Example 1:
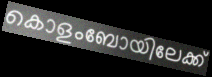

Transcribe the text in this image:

കൊളംബോയിലേക്ക്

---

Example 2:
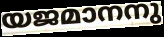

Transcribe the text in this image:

യജമാനനു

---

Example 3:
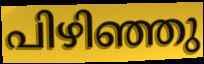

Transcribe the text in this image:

പിഴിഞ്ഞു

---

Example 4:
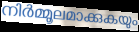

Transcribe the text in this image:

നിർമ്മൂലമാക്കുകയും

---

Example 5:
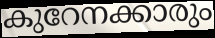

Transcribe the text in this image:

കുറേനക്കാരും